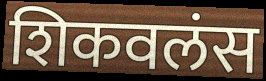
शिकवलंस